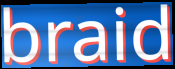
braid